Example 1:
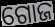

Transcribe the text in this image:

ଗୋଜ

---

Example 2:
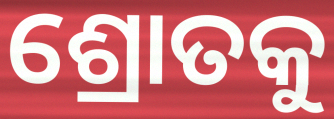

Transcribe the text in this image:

ଶ୍ରୋତକୁ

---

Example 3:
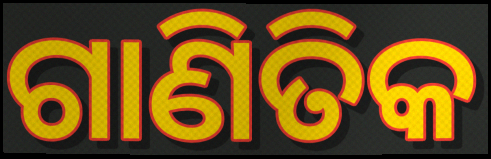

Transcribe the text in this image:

ଗାଣିତିକ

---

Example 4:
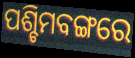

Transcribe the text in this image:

ପଶ୍ଚିମବଙ୍ଗରେ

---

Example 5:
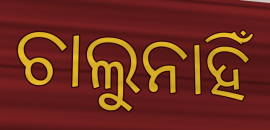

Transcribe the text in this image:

ଚାଲୁନାହିଁ